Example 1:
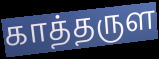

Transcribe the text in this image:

காத்தருள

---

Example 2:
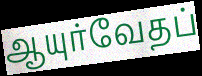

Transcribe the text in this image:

ஆயுர்வேதப்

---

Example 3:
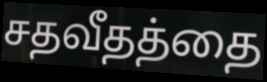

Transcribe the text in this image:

சதவீதத்தை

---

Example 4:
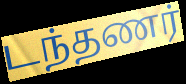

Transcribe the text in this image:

டந்தணர்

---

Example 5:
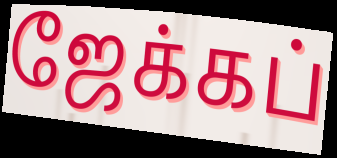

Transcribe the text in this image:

ஜேக்கப்